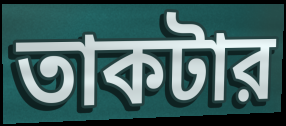
তাকটার